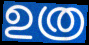
ഉത്ര